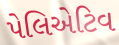
પેલિએટિવ